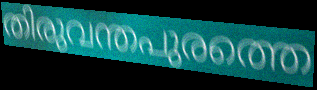
തിരുവന്തപുരത്തെ